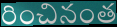
రించినంత